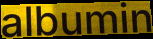
albumin